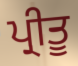
ਪ੍ਰੀਤੂ